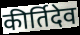
कीर्तिदेव